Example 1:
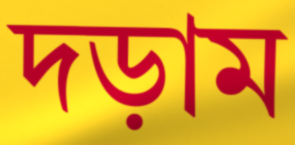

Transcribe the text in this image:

দড়াম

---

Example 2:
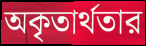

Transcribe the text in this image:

অকৃতার্থতার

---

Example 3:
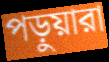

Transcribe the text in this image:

পড়ুয়ারা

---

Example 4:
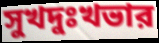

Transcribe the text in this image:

সুখদুঃখভার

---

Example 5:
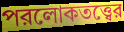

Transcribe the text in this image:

পরলোকতত্ত্বের